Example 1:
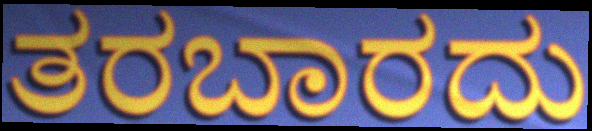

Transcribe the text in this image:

ತರಬಾರದು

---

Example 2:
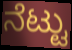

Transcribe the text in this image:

ನೆಟ್ಟು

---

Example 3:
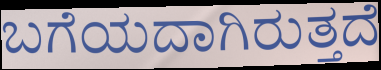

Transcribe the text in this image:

ಬಗೆಯದಾಗಿರುತ್ತದೆ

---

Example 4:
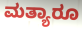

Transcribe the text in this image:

ಮತ್ಯಾರೂ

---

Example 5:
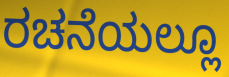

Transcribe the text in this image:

ರಚನೆಯಲ್ಲೂ